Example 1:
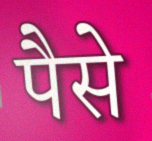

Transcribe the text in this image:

पैसे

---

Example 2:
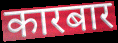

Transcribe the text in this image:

कारबार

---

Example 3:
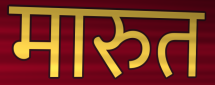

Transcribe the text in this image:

मारुत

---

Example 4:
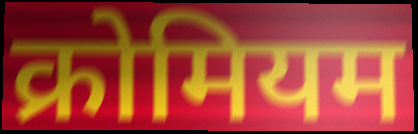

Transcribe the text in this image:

क्रोमियम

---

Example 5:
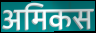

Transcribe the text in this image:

अमिकस